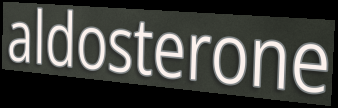
aldosterone